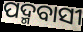
ପଦ୍ମବାସୀ